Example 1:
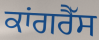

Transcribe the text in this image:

ਕਾਂਗਰੈੱਸ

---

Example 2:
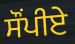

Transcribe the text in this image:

ਸੌਂਪੀਏ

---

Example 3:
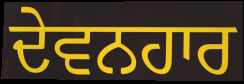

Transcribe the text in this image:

ਦੇਵਨਹਾਰ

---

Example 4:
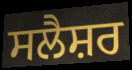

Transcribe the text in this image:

ਸਲੈਸ਼ਰ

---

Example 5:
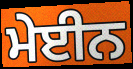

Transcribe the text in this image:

ਮੇਈਨ